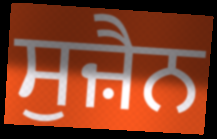
ਸੁਜ਼ੈਨ